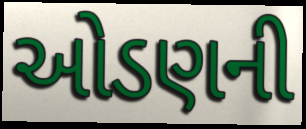
ઓડણની